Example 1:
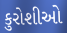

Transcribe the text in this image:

કુરોશીઓ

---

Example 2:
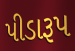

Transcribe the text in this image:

પીડારૂપ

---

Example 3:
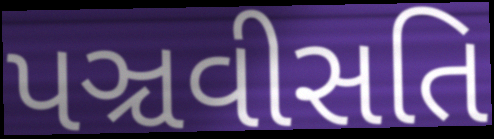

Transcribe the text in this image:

પઞ્ચવીસતિ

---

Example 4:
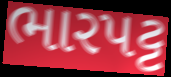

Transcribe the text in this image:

ભારપટ્ટ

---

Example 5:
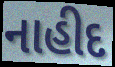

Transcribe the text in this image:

નાહીદ